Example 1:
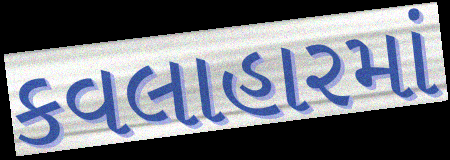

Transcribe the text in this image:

કવલાહારમાં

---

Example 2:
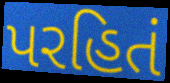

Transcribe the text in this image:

પરહિતં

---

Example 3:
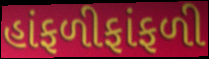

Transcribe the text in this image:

હાંફળીફાંફળી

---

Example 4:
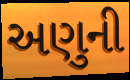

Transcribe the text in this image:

અણુની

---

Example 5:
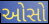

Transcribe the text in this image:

ઓસો